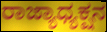
ರಾಜ್ಯಾಧ್ಯಕ್ಷನ